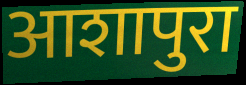
आशापुरा